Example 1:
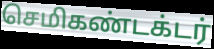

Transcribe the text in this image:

செமிகண்டக்டர்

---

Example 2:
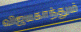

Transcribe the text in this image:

விஜயகாந்தும்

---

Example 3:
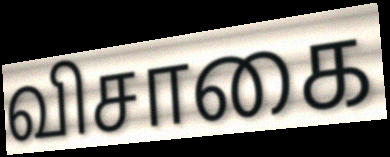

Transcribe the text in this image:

விசாகை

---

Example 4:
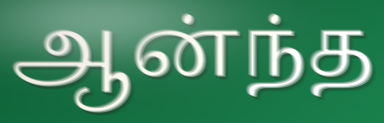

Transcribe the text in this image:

ஆன்ந்த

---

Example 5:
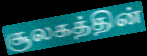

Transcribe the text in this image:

சூலகத்தின்